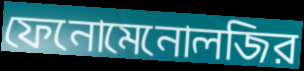
ফেনোমেনোলজির